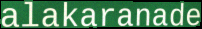
alakaranade